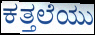
ಕತ್ತಲೆಯು